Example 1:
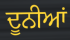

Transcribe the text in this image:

ਦੂਨੀਆਂ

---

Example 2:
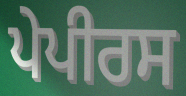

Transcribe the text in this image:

ਪੇਪੀਰਸ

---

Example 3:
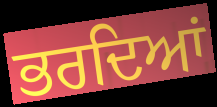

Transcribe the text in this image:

ਭਰਦਿਆਂ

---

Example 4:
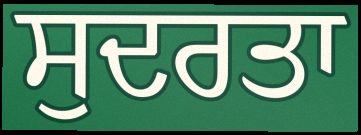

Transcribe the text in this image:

ਸੁਦਰਤਾ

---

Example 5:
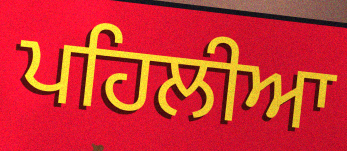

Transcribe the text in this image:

ਪਹਿਲੀਆ